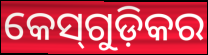
କେସ୍‌ଗୁଡ଼ିକର